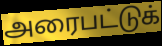
அரைபட்டுக்